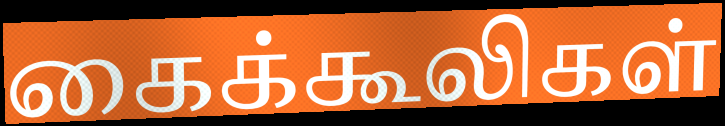
கைக்கூலிகள்